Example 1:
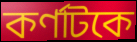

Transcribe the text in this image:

কর্ণাটকে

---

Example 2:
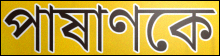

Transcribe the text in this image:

পাষাণকে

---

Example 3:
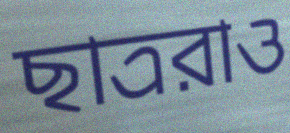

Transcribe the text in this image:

ছাত্ররাও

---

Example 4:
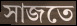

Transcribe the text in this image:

সাজতে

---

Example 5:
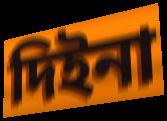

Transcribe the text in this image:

দিইনা